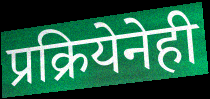
प्रक्रियेनेही